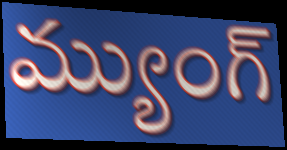
మ్యుంగ్